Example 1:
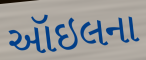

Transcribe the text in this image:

ઑઇલના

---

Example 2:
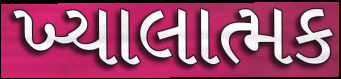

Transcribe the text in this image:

ખ્યાલાત્મક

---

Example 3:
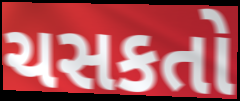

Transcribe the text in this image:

ચસકતો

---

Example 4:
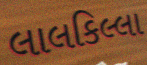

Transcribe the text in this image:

લાલકિલ્લા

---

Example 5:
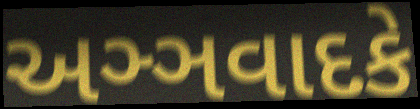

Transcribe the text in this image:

અઞ્ઞવાદકે